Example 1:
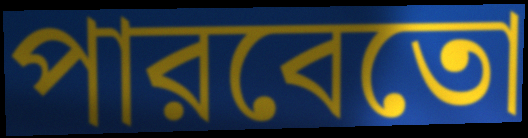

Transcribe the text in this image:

পারবেতো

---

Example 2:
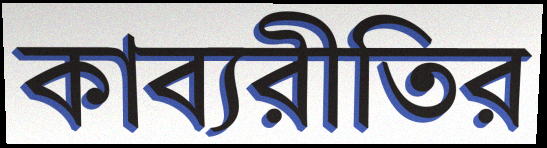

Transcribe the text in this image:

কাব্যরীতির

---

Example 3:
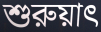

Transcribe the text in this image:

শুরুয়াৎ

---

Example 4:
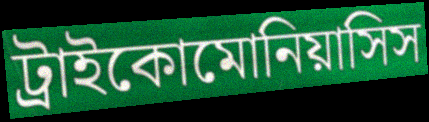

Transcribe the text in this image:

ট্রাইকোমোনিয়াসিস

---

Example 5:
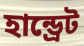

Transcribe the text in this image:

হান্ড্রেট